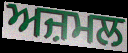
ਅਜ਼ਮਲ